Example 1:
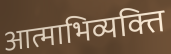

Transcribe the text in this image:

आत्माभिव्यक्ति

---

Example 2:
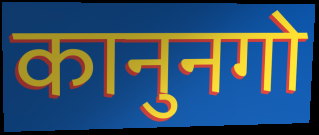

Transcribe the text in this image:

कानुनगो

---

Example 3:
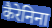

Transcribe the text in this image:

कैरेनिना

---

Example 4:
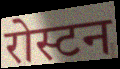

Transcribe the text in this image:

रोस्टन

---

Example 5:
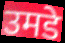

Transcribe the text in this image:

उमडे